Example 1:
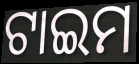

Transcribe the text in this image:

ଟାଇମ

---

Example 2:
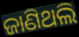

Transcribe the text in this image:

ଜାଣିଥଲି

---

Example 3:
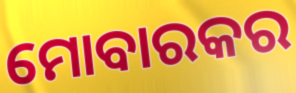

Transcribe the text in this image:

ମୋବାରକର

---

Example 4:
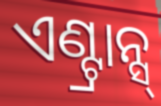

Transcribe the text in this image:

ଏଣ୍ଟ୍ରାନ୍ସ୍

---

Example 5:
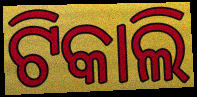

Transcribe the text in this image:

ଟିକାଲି